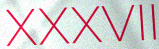
XXXVII